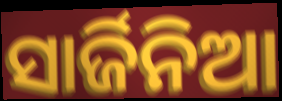
ସାର୍ଜିନିଆ